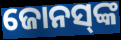
ଜୋନସ୍‌ଙ୍କ